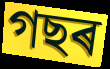
গছৰ